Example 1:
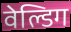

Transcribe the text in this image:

वेल्डिग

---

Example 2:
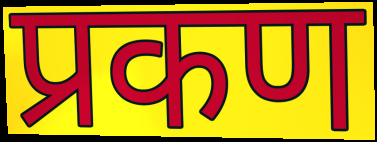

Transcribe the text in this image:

प्रकण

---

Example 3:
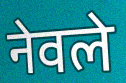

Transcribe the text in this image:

नेवले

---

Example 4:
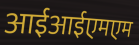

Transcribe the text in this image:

आईआईएमएम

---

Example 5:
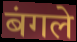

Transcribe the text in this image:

बंगले